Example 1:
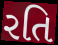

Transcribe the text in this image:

રતિ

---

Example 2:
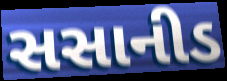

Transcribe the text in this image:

સસાનીડ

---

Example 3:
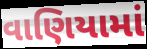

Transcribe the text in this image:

વાણિયામાં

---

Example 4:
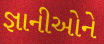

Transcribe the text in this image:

જ્ઞાનીઓને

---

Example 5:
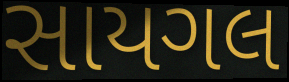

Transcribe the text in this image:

સાયગલ